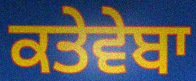
ਕਤੇਵੇਬਾ